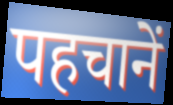
पहचानें